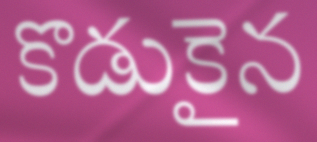
కొడుకైన